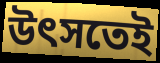
উৎসতেই